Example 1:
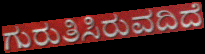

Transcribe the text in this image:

ಗುರುತಿಸಿರುವದಿದೆ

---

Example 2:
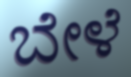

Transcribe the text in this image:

ಬೇಳೆ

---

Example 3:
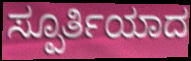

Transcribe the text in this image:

ಸ್ಪೂರ್ತಿಯಾದ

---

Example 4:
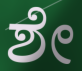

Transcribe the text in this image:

ಶೇ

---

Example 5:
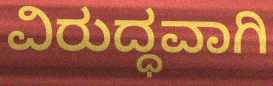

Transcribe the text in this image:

ವಿರುದ್ಧವಾಗಿ